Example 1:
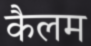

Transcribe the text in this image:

कैलम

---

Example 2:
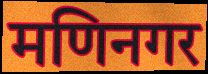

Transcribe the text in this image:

मणिनगर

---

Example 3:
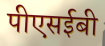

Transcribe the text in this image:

पीएसईबी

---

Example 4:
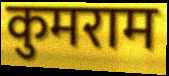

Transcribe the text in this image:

कुमराम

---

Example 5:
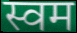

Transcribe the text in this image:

स्वम